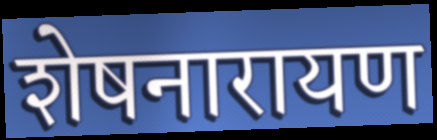
शेषनारायण